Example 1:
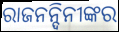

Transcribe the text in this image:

ରାଜନନ୍ଦିନୀଙ୍କର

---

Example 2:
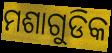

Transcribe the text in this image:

ମଶାଗୁଡିକ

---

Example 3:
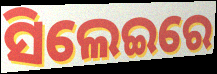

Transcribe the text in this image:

ସିଲେଇରେ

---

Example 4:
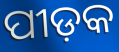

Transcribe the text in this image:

ପୀଡ଼କ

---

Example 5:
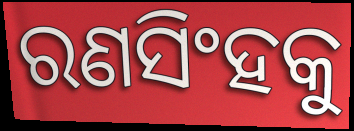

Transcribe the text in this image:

ରଣସିଂହକୁ